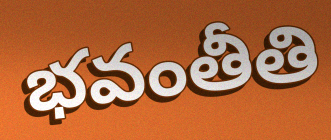
భవంతీతి